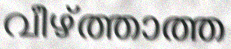
വീഴ്ത്താത്ത